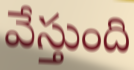
వేస్తుంది